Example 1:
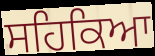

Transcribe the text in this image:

ਸਹਿਕਿਆ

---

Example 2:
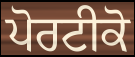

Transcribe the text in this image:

ਪੋਰਟੀਕੋ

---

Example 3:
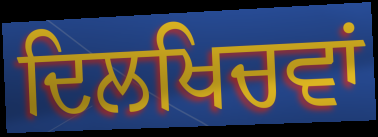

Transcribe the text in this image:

ਦਿਲਖਿਚਵਾਂ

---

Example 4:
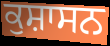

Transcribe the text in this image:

ਕੁਸ਼ਾਸਨ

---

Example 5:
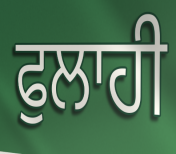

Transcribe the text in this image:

ਫੁਲਾਹੀ